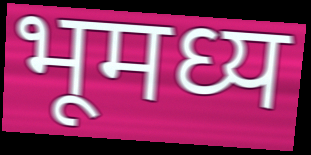
भूमध्य